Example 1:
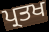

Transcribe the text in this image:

ਪ੍ਰਤਖ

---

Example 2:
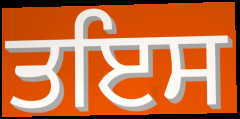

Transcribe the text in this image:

ਤਇਸ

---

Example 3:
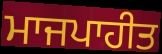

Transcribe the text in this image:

ਮਾਜਪਾਹੀਤ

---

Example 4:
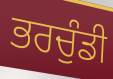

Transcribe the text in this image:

ਭਰਚੁੰਡੀ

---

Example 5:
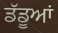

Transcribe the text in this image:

ਡੱਡੂਆਂ